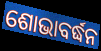
ଶୋଭାବର୍ଦ୍ଧନ